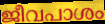
ജീവപാശം